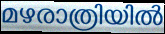
മഴരാത്രിയിൽ